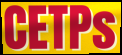
CETPs